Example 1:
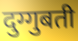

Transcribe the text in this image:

दुग्गुबती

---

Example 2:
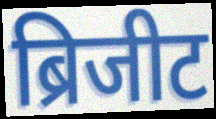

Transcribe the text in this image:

ब्रिजीट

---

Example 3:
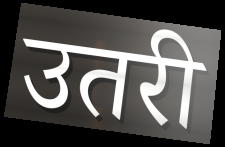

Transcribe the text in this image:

उतरी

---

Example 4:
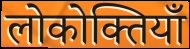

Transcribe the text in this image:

लोकोक्तियाँ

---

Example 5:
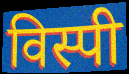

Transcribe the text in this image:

विस्पी